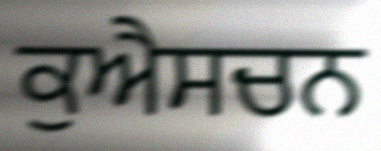
ਕੁਐਸਚਨ